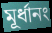
মূর্ধানং